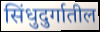
सिंधुदुर्गातील